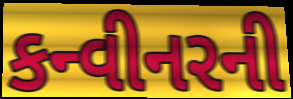
કન્વીનરની